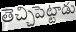
తెచ్చిపెట్టాడు